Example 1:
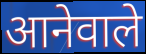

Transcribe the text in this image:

आनेवाले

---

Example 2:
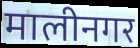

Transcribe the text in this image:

मालीनगर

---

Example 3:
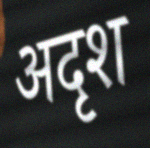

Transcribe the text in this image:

अदृश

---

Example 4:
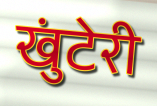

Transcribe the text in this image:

खुंटेरी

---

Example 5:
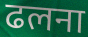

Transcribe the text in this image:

ढलना